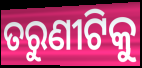
ତରୁଣୀଟିକୁ